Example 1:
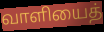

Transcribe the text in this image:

வாளியைத்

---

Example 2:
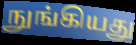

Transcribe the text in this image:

நுங்கியது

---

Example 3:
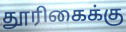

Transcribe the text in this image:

தூரிகைக்கு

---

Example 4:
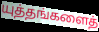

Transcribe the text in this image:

யுத்தங்களைத்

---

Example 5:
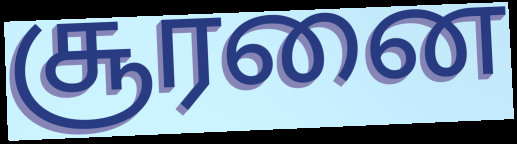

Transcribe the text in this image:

சூரனை